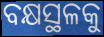
ବକ୍ଷସ୍ଥଳକୁ